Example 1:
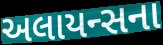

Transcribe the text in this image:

અલાયન્સના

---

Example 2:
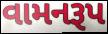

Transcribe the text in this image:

વામનરૂપ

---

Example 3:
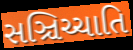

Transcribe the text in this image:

સઞ્ચિચ્ચાતિ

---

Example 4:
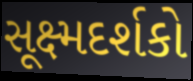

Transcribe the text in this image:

સૂક્ષ્મદર્શકો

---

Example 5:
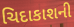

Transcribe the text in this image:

ચિદાકાશની